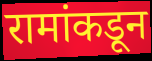
रामांकडून